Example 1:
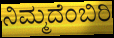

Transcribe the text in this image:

ನಿಮ್ಮದೆಂಬಿರಿ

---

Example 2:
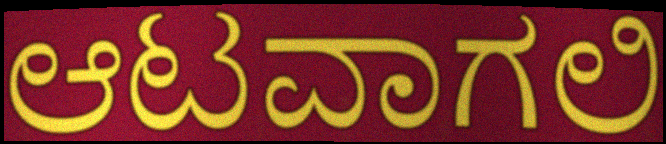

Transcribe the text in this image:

ಆಟವಾಗಲಿ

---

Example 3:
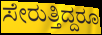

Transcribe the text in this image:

ಸೇರುತ್ತಿದ್ದರೂ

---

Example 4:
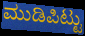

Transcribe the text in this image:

ಮುಡಿಪಿಟ್ಟು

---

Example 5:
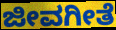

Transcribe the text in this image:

ಜೀವಗೀತೆ